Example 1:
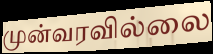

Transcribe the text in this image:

முன்வரவில்லை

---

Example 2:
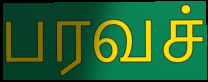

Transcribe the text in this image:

பரவச்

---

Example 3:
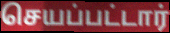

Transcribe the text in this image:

செயப்பட்டார்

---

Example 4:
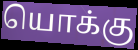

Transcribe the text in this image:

யொக்கு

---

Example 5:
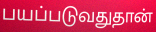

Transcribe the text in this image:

பயப்படுவதுதான்